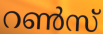
റൺസ്